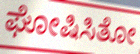
ಘೋಷಿಸಿತೋ